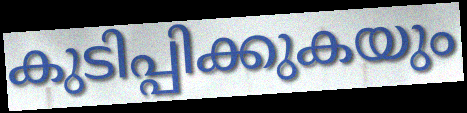
കുടിപ്പിക്കുകയും